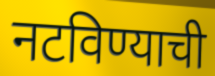
नटविण्याची